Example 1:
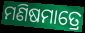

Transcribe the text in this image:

ମଣିଷମାତ୍ରେ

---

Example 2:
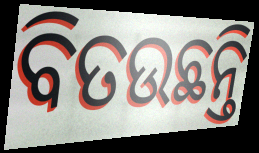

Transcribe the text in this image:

ବିତଉଛନ୍ତି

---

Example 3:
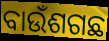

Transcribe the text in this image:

ବାଉଁଶଗଛ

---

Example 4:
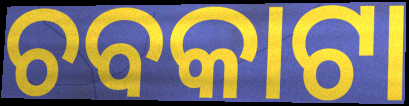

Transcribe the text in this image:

ଚବକାଟା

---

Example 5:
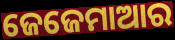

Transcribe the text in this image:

ଜେଜେମାଆର